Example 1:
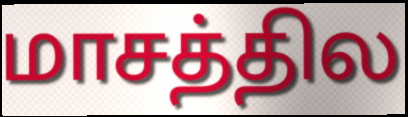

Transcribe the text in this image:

மாசத்தில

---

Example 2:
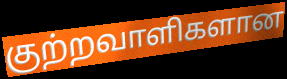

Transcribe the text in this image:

குற்றவாளிகளான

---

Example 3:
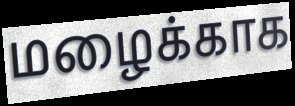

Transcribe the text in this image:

மழைக்காக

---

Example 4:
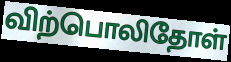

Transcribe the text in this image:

விற்பொலிதோள்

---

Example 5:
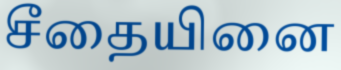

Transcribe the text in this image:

சீதையினை